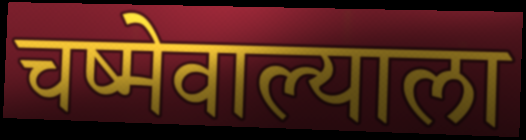
चष्मेवाल्याला